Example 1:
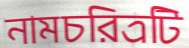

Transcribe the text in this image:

নামচরিত্রটি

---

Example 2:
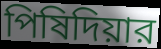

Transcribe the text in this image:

পিষিদিয়ার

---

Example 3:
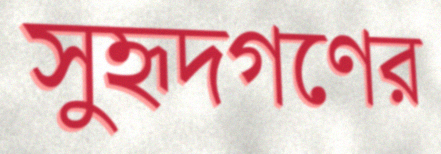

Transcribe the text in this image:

সুহৃদগণের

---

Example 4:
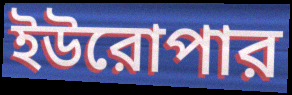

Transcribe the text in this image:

ইউরোপার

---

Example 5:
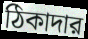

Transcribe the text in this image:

ঠিকাদার